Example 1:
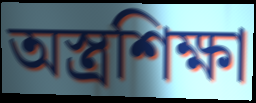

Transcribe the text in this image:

অস্ত্রশিক্ষা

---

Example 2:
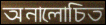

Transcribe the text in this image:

অনালোচিত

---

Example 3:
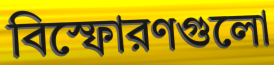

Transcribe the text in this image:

বিস্ফোরণগুলো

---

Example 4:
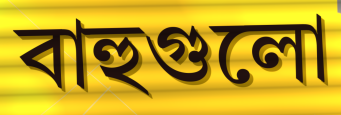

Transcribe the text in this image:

বাহুগুলো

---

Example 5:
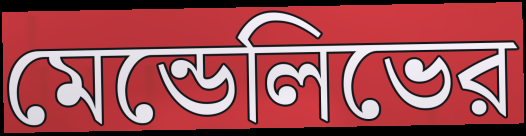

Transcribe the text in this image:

মেন্ডেলিভের